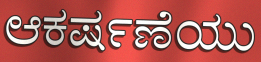
ಆಕರ್ಷಣೆಯು